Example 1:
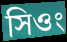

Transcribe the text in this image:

সিওং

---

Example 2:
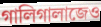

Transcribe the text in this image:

গালিগালাজেও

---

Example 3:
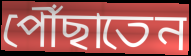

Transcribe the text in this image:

পৌঁছাতেন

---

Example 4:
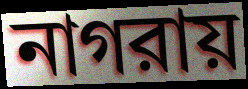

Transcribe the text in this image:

নাগরায়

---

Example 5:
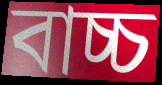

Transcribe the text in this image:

বাচ্চ